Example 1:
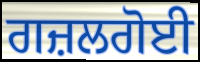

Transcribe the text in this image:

ਗਜ਼ਲਗੋਈ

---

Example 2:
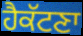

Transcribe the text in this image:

ਹੈਕੱਟਣਾ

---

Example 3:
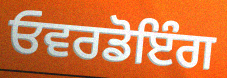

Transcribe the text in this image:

ਓਵਰਡੋਇੰਗ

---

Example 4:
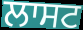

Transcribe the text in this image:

ਲਾਸਟ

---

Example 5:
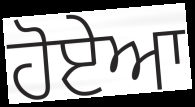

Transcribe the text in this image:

ਹੋਏਆ